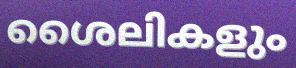
ശൈലികളും